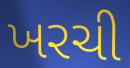
ખરચી